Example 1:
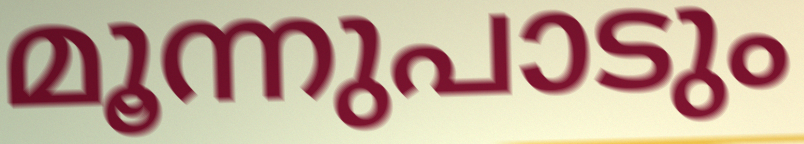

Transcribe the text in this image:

മൂന്നുപാടും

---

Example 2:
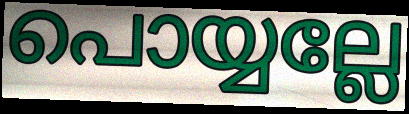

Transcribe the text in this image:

പൊയ്യല്ലേ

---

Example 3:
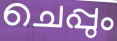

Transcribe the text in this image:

ചെപ്പും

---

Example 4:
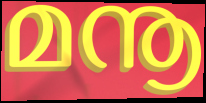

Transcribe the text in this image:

മനൂ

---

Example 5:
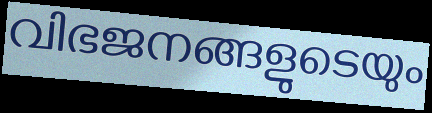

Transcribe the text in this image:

വിഭജനങ്ങളുടെയും